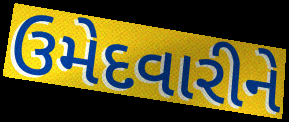
ઉમેદવારીને